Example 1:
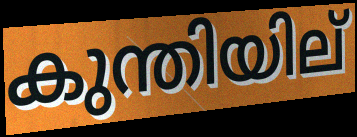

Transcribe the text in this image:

കുന്തിയില്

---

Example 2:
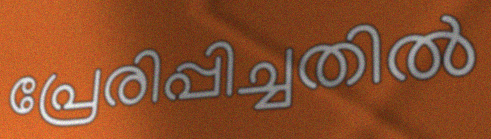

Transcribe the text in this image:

പ്രേരിപ്പിച്ചതിൽ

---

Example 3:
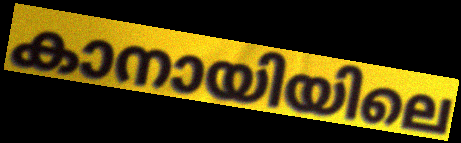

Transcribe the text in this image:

കാനായിയിലെ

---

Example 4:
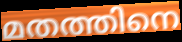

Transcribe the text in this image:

മതത്തിനെ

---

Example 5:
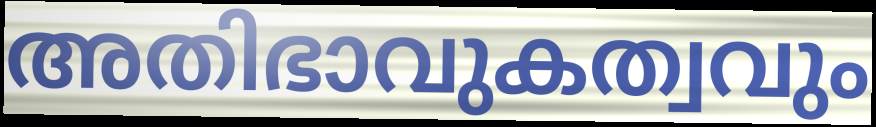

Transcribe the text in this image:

അതിഭാവുകത്വവും